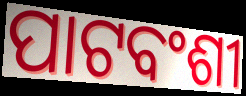
ପାଟବଂଶୀ